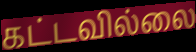
கட்டவில்லை